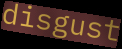
disgust